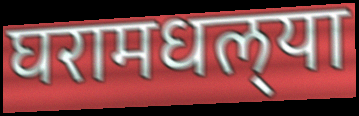
घरामधल्या